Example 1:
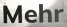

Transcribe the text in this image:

Mehr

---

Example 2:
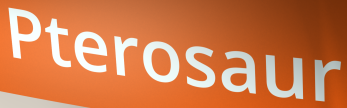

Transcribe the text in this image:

Pterosaur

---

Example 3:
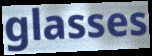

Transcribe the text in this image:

glasses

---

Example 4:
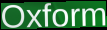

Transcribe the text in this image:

Oxform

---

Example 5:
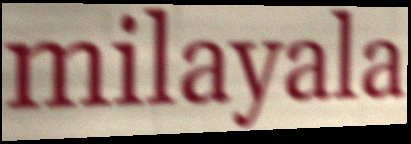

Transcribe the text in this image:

milayala